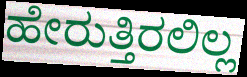
ಹೇರುತ್ತಿರಲಿಲ್ಲ